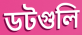
ডটগুলি